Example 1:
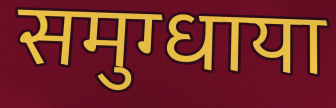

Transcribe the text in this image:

समुग्धाया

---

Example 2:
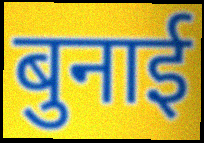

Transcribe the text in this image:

बुनाई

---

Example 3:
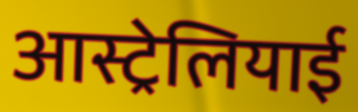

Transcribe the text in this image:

आस्ट्रेलियाई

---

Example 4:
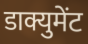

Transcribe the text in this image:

डाक्युमेंट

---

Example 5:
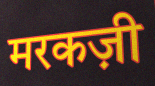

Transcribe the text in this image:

मरकज़ी